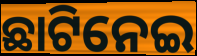
ଛାଟିନେଇ